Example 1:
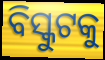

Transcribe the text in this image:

ବିସ୍କୁଟକୁ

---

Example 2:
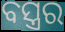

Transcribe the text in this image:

ବସ୍ତ୍ରର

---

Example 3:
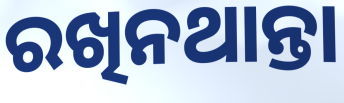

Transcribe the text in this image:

ରଖିନଥାନ୍ତା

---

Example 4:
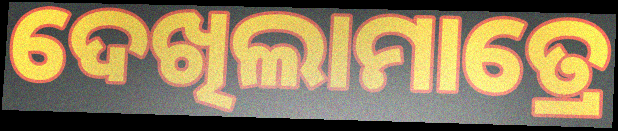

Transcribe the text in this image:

ଦେଖିଲାମାତ୍ରେ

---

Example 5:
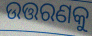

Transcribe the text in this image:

ଉତ୍ତରଣକୁ